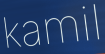
kamil